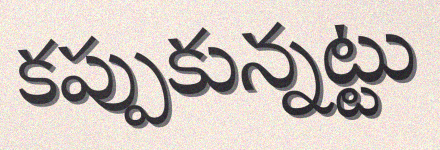
కప్పుకున్నట్టు